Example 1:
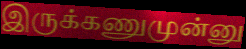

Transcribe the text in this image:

இருக்கணுமுன்னு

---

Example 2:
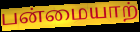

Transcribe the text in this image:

பன்மையாற்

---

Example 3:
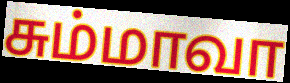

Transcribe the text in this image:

சும்மாவா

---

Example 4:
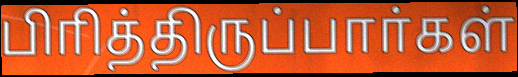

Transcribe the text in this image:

பிரித்திருப்பார்கள்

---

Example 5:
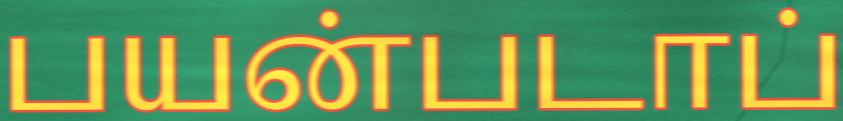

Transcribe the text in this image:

பயன்படாப்